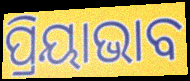
ପ୍ରିୟାଭାବ